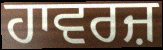
ਹਾਵਰਜ਼